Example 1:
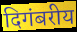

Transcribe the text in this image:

दिगंबरीय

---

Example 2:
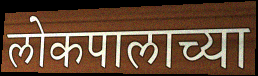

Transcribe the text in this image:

लोकपालाच्या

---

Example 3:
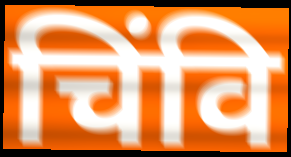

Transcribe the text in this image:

चिंवि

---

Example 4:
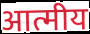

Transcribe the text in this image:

आत्मीय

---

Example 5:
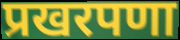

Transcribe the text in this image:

प्रखरपणा